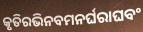
କୃତିରଭିନବମନର୍ଘରାଘବଂ